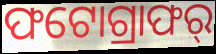
ଫଟୋଗ୍ରାଫର୍